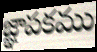
జ్ఞాపకము